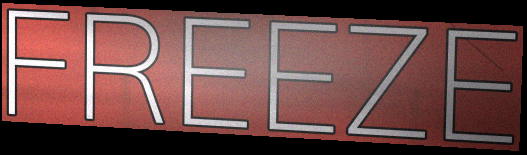
FREEZE